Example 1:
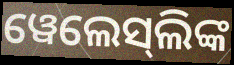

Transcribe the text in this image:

ୱେଲେସ୍‌ଲିଙ୍କ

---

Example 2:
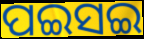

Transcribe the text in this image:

ପଇସଇ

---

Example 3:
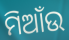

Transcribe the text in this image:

ମିଆଁଉ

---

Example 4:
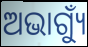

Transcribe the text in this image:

ଅଭାଗ୍ୟୁଁ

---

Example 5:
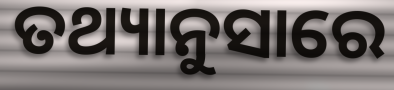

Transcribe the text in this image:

ତଥ୍ୟାନୁସାରେ